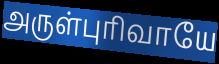
அருள்புரிவாயே